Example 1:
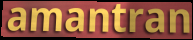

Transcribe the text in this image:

amantran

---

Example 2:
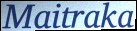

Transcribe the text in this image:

Maitraka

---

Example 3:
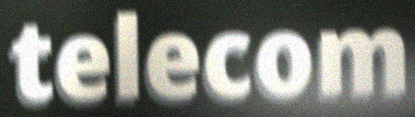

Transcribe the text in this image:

telecom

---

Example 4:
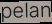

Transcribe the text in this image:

pelan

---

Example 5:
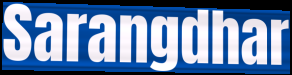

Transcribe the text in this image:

Sarangdhar